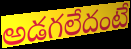
అడగలేదంటే